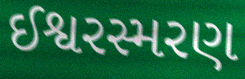
ઈશ્વરસ્મરણ